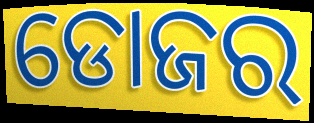
ଡୋଜର